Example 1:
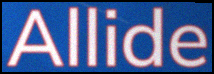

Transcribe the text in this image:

Allide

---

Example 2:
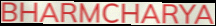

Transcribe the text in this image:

BHARMCHARYA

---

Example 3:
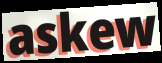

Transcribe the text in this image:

askew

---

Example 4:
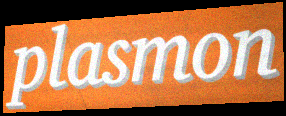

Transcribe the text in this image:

plasmon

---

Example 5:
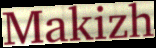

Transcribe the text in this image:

Makizh